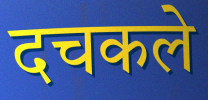
दचकले